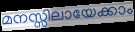
മനസ്സിലായേക്കാം